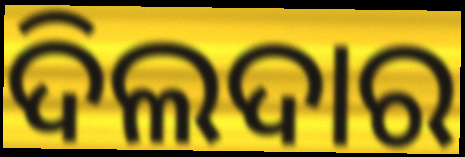
ଦିଲଦାର